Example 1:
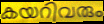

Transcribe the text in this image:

കയറിവരും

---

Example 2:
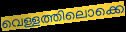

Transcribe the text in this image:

വെള്ളത്തിലൊക്കെ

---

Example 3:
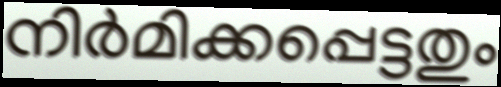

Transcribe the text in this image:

നിർമിക്കപ്പെട്ടതും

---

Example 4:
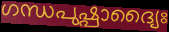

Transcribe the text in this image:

ഗന്ധപുഷ്പാദ്യൈഃ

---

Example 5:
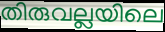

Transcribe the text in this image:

തിരുവല്ലയിലെ